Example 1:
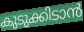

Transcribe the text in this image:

കുടുക്കിടാൻ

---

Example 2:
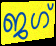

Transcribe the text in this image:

ജഗ്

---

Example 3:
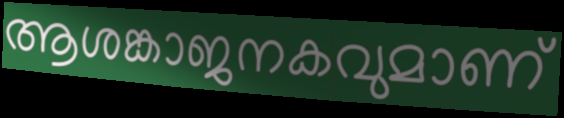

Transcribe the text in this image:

ആശങ്കാജനകവുമാണ്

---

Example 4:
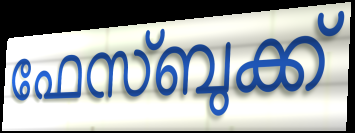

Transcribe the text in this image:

ഫേസ്ബുക്ക്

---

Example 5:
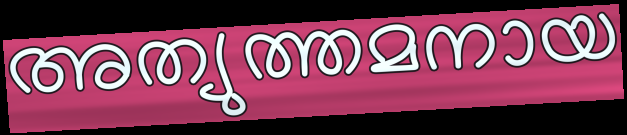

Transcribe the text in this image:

അത്യുത്തമനായ